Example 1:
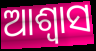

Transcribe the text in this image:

ଆଶ୍ୱାସ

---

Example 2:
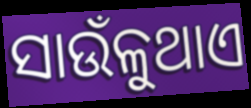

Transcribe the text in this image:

ସାଉଁଳୁଥାଏ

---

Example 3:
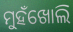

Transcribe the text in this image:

ମୁହଁଖୋଲି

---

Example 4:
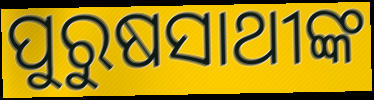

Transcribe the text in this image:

ପୁରୁଷସାଥୀଙ୍କ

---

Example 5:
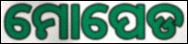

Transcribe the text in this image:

ମୋପେଡ